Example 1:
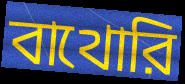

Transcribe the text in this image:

বাথোরি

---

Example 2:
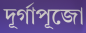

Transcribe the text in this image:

দূর্গাপূজো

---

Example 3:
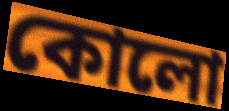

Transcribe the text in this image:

কোলো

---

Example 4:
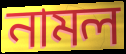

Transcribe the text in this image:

নামল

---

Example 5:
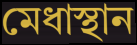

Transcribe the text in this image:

মেধাস্থান